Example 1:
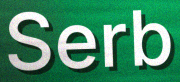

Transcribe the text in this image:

Serb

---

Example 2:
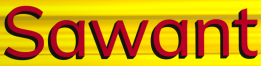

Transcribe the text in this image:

Sawant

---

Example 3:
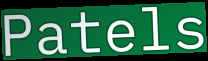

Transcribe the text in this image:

Patels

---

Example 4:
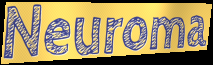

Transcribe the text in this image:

Neuroma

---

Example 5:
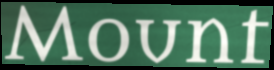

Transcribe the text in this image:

Mount